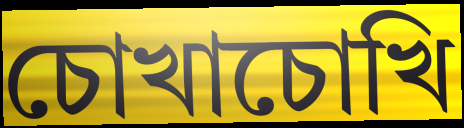
চোখাচোখি